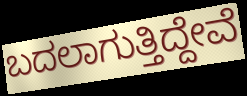
ಬದಲಾಗುತ್ತಿದ್ದೇವೆ